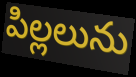
పిల్లలును